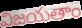
విజయతాం